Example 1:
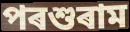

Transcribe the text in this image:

পৰশুৰাম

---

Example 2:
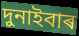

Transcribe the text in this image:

দুনাইবাৰ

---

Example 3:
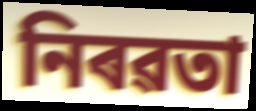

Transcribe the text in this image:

নিৰৱতা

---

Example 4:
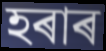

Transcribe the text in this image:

হৰাৰ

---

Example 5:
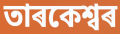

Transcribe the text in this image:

তাৰকেশ্বৰ